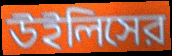
উইলিসের